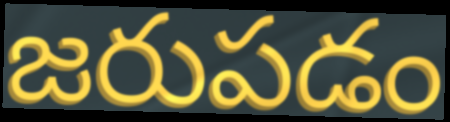
జరుపడం